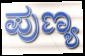
ಪುಣ್ಯ